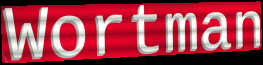
Wortman